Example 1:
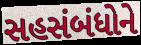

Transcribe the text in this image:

સહસંબંધોને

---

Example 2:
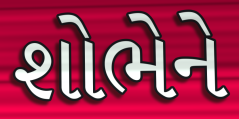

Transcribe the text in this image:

શોભેને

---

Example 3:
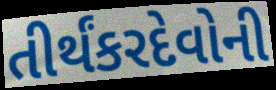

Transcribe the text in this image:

તીર્થંકરદેવોની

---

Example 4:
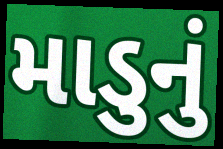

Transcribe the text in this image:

માડુનું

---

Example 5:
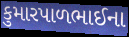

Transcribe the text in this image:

કુમારપાળભાઈના